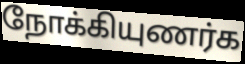
நோக்கியுணர்க